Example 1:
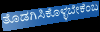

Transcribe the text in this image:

ತೊಡಗಿಸಿಕೊಳ್ಳಬೇಕೆಂಬ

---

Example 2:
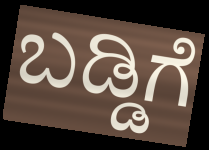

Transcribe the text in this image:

ಬಡ್ಡಿಗೆ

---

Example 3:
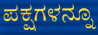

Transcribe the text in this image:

ಪಕ್ಷಗಳನ್ನೂ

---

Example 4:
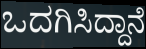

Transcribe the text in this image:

ಒದಗಿಸಿದ್ದಾನೆ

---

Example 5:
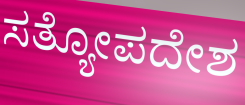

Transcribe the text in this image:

ಸತ್ಯೋಪದೇಶ